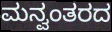
ಮನ್ವಂತರದ